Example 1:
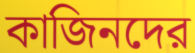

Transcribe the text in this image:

কাজিনদের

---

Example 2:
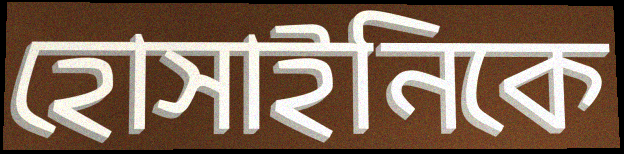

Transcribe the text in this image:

হোসাইনিকে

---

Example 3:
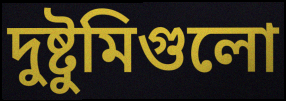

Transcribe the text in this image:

দুষ্টুমিগুলো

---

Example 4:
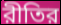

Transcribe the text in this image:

রীতির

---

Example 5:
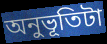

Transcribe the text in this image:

অনুভূতিটা